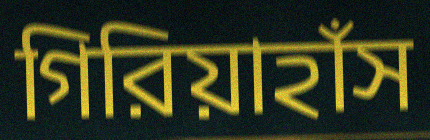
গিরিয়াহাঁস